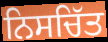
ਨਿਸਚਿੱਤ